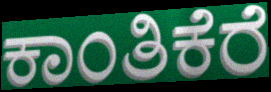
ಕಾಂತಿಕೆರೆ